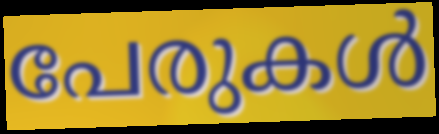
പേരുകൾ